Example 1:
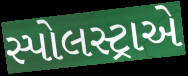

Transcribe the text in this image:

સ્પોલસ્ટ્રાએ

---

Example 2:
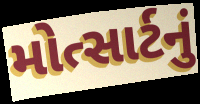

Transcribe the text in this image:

મોત્સાર્ટનું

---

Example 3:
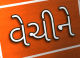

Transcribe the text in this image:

વેચીને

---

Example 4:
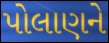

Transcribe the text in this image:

પોલાણને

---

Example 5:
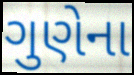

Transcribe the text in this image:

ગુણેના